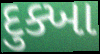
દુક્ખા